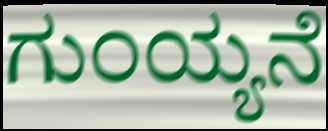
ಗುಂಯ್ಯನೆ